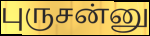
புருசன்னு